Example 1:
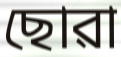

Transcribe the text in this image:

ছোৱা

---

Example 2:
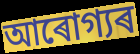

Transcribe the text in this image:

আৰোগ্যৰ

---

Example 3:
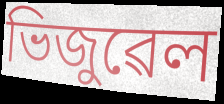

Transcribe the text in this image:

ভিজুৱেল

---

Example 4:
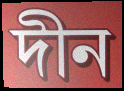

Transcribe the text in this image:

দীন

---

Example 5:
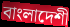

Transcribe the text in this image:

বাংলাদেশী